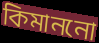
কিমাননো